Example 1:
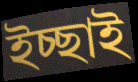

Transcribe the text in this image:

ইচ্ছাই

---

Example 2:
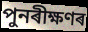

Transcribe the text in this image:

পুনৰীক্ষণৰ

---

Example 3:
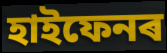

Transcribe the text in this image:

হাইফেনৰ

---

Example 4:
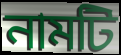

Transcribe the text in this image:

নামটি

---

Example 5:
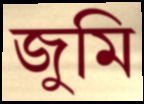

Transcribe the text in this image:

জুমি